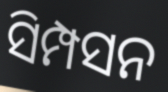
ସିମ୍ପସନ